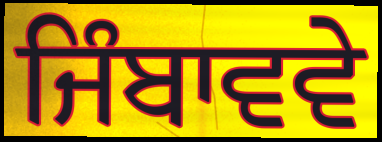
ਜਿੰਬਾਵਵੇ